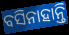
ବସିନାହାନ୍ତି